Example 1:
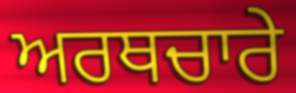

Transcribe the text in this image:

ਅਰਥਚਾਰੇ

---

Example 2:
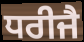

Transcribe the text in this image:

ਧਰੀਜੈ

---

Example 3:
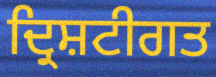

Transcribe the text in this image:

ਦ੍ਰਿਸ਼ਟੀਗਤ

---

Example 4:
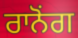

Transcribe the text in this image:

ਰਾਨੋਂਗ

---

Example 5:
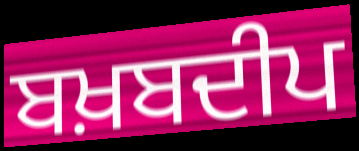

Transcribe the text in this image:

ਬਖ਼ਬਦੀਪ